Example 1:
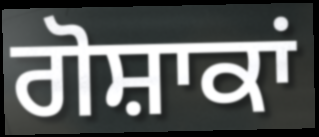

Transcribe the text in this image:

ਗੋਸ਼ਾਕਾਂ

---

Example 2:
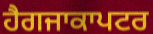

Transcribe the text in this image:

ਹੈਗਜਾਕਾਪਟਰ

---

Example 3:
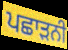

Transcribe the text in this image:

ਪਛਾੜਨੀ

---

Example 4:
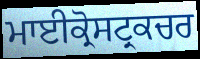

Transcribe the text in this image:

ਮਾਈਕ੍ਰੋਸਟ੍ਰਕਚਰ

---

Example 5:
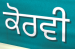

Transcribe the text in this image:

ਕੋਰਵੀ